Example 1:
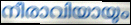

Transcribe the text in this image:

നീരാവിയായും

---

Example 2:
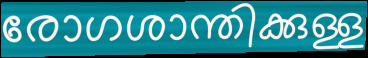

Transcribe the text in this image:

രോഗശാന്തിക്കുള്ള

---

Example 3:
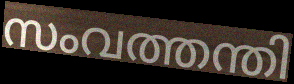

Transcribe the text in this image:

സംവത്തന്തി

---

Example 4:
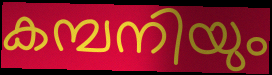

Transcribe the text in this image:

കമ്പനിയും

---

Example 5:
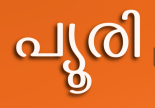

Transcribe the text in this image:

പ്യൂരി